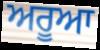
ਅਰੂਆ